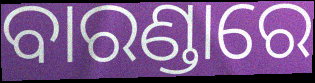
ବାରଣ୍ଡାରେ